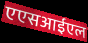
एएसआईएल